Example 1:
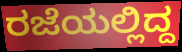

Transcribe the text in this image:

ರಜೆಯಲ್ಲಿದ್ದ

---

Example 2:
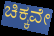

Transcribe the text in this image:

ಚಿಕ್ಕವೇ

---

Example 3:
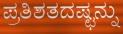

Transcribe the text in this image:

ಪ್ರತಿಶತದಷ್ಟನ್ನು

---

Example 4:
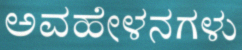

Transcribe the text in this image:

ಅವಹೇಳನಗಳು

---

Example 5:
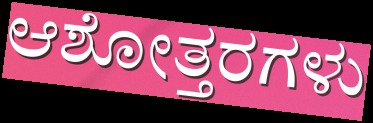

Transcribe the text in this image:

ಆಶೋತ್ತರಗಳು